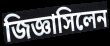
জিজ্ঞাসিলেন